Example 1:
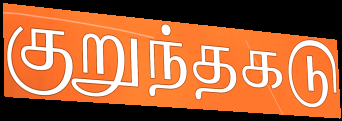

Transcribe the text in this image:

குறுந்தகடு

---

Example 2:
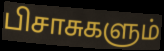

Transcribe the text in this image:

பிசாசுகளும்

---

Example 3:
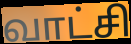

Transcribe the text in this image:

வாட்சி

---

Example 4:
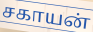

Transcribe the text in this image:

சகாயன்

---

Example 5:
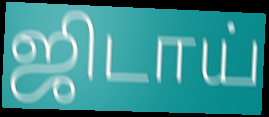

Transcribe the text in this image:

ஜிடாய்